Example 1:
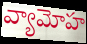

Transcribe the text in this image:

వ్యామోహ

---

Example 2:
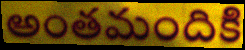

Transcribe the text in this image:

అంతమందికి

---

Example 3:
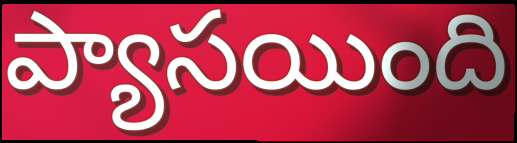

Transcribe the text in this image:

ప్యాసయింది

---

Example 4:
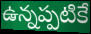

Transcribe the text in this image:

ఉన్నప్పటికే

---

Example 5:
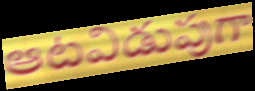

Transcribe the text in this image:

ఆటవిడుపుగా